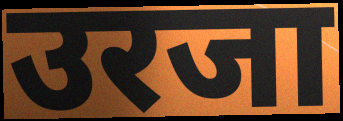
उरजा